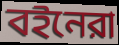
বইনেরা